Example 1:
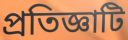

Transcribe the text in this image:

প্রতিজ্ঞাটি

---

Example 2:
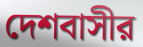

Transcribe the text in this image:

দেশবাসীর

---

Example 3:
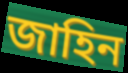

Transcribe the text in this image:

জাহিন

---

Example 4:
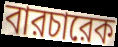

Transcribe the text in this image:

বারচারেক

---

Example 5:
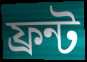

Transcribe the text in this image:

ফ্রন্ট